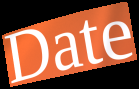
Date